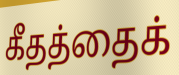
கீதத்தைக்